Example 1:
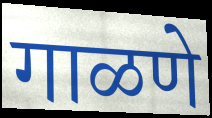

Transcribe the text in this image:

गाळणे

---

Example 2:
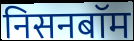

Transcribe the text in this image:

निसनबॉम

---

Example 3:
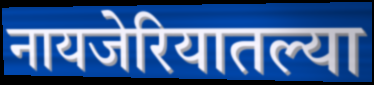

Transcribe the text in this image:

नायजेरियातल्या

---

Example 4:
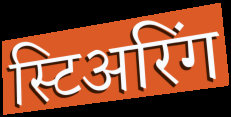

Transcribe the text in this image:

स्टिअरिंग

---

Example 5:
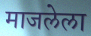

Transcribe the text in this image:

माजलेला